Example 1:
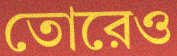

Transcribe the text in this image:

তোরেও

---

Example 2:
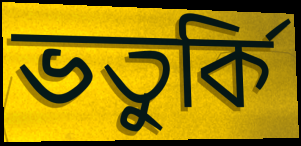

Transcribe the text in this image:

ভতুর্কি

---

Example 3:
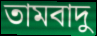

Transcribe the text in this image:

তামবাদু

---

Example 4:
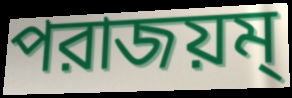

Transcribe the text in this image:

পরাজয়ম্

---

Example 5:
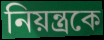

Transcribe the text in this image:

নিয়ন্ত্রকে